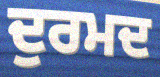
ਦੁਰਮਦ